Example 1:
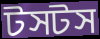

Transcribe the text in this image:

টসটস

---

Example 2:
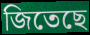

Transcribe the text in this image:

জিতেছে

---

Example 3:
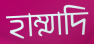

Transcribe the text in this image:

হাম্মাদি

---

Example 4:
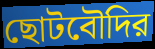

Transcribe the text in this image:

ছোটবৌদির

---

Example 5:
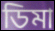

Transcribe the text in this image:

ডিমা